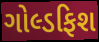
ગોલ્ડફિશ